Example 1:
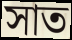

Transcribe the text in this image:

সাত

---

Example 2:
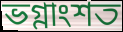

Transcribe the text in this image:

ভগ্নাংশত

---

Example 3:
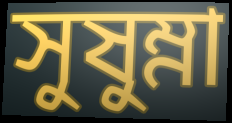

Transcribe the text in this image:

সুষুম্না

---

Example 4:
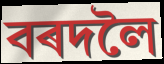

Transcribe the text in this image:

বৰদলৈ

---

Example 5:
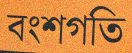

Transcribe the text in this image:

বংশগতি